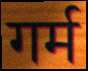
गर्म